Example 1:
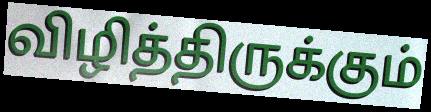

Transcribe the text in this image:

விழித்திருக்கும்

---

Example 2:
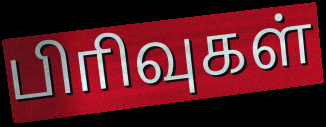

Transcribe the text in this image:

பிரிவுகள்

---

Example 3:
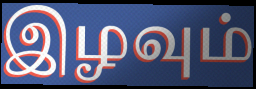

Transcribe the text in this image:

இழவும்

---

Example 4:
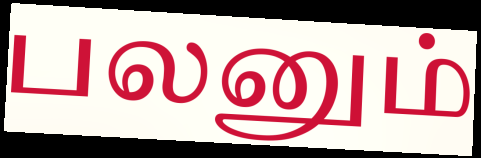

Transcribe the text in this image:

பலனும்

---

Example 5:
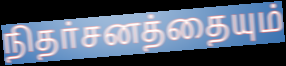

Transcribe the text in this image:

நிதர்சனத்தையும்